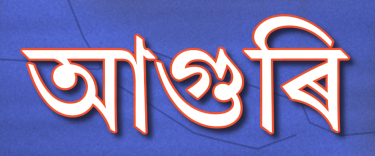
আগুৰি